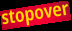
stopover